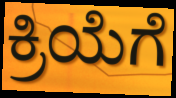
ಕ್ರಿಯೆಗೆ